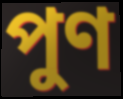
পুণ